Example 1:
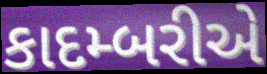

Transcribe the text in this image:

કાદમ્બરીએ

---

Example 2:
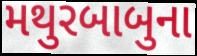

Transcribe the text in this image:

મથુરબાબુના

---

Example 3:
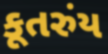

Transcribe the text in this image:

કૂતરુંય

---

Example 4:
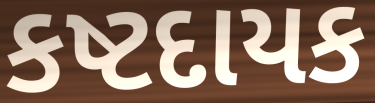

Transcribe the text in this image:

કષ્ટદાયક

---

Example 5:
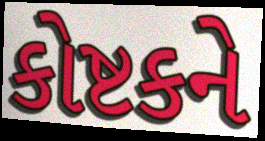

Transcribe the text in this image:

કોષ્ટકને